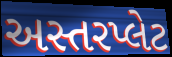
અસ્તરપ્લેટ